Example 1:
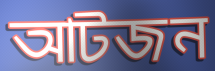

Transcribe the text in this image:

আটজন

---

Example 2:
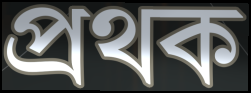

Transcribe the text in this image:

প্রথক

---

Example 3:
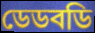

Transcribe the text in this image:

ডেডবডি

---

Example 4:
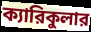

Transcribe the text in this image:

ক্যারিকুলার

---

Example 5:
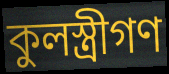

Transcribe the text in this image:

কুলস্ত্রীগণ